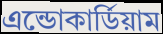
এন্ডোকার্ডিয়াম